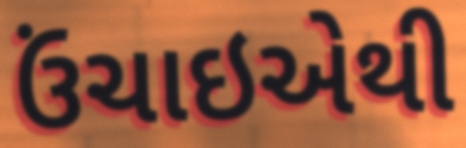
ઉંચાઇએથી